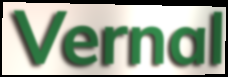
Vernal